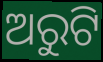
ଅରୁଟି